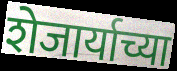
शेजार्याच्या